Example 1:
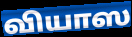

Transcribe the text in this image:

வியாஸ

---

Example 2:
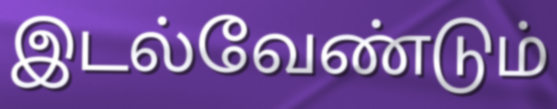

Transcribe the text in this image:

இடல்வேண்டும்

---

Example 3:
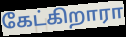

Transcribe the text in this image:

கேட்கிறாரா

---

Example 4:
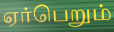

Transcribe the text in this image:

ஏர்பெறும்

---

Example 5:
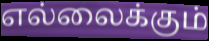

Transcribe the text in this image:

எல்லைக்கும்